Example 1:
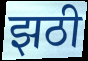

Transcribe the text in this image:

झठी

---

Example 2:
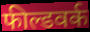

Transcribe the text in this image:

फील्डवर्क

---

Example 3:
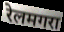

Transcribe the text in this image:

रेलमगरा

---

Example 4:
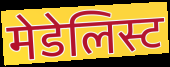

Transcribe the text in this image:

मेडेलिस्ट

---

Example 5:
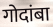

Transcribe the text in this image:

गोदांबा